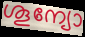
ശൂന്യോ